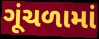
ગૂંચળામાં